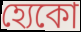
হ্যেকো